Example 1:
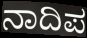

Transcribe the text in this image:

ನಾದಿಪ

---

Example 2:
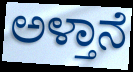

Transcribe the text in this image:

ಅಳ್ತಾನೆ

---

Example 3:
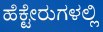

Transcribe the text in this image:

ಹೆಕ್ಟೇರುಗಳಲ್ಲಿ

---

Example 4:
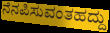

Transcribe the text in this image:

ನೆನಪಿಸುವಂತಹದ್ದು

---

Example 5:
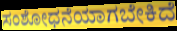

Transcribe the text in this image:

ಸಂಶೋಧನೆಯಾಗಬೇಕಿದೆ